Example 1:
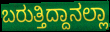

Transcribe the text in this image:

ಬರುತ್ತಿದ್ದಾನಲ್ಲಾ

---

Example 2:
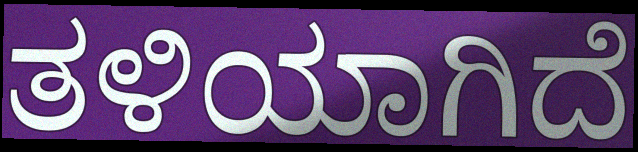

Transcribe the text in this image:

ತಳಿಯಾಗಿದೆ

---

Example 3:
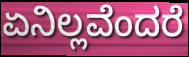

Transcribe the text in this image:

ಏನಿಲ್ಲವೆಂದರೆ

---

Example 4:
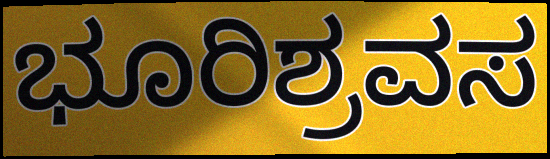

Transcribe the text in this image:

ಭೂರಿಶ್ರವಸ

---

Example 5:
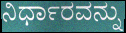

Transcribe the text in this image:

ನಿರ್ಧಾರವನ್ನು